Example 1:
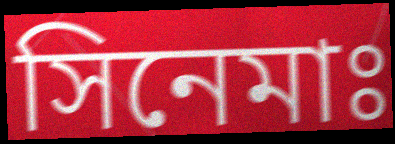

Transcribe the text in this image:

সিনেমাঃ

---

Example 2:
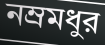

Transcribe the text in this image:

নম্রমধুর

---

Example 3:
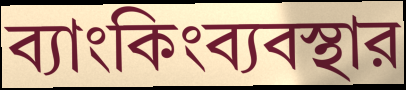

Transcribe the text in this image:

ব্যাংকিংব্যবস্থার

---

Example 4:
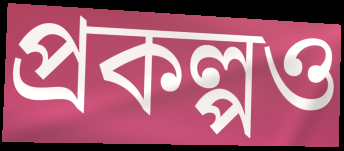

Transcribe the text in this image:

প্রকল্পও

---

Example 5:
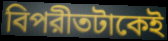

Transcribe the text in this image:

বিপরীতটাকেই